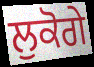
ਲੁਕੋਗੇ